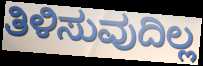
ತಿಳಿಸುವುದಿಲ್ಲ